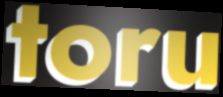
toru